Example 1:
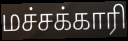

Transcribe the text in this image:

மச்சக்காரி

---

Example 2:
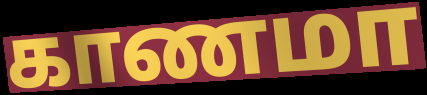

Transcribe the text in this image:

காணமா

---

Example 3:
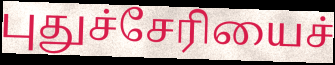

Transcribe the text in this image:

புதுச்சேரியைச்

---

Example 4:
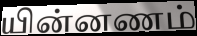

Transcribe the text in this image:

யின்னணம்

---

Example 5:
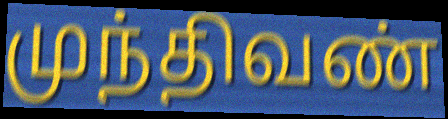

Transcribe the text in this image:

முந்திவண்